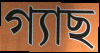
গ্যাছ